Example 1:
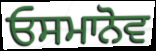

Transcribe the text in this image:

ਓਸਮਾਨੋਵ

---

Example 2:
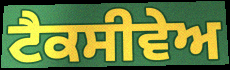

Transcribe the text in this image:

ਟੈਕਸੀਵੇਅ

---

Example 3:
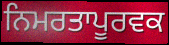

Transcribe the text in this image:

ਨਿਮਰਤਾਪੂਰਵਕ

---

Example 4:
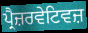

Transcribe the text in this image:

ਪ੍ਰੈਜ਼ਰਵੇਟਿਵਜ਼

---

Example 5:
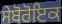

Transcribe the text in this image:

ਸੇਬੋਰੋਇਕ